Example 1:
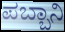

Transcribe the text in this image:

ಪಬ್ಬಾನಿ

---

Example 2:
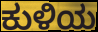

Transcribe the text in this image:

ಕುಳಿಯ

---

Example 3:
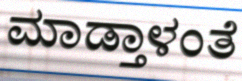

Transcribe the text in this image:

ಮಾಡ್ತಾಳಂತೆ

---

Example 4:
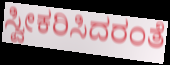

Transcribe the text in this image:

ಸ್ವೀಕರಿಸಿದರಂತೆ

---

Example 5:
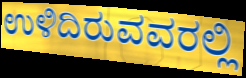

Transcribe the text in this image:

ಉಳಿದಿರುವವರಲ್ಲಿ